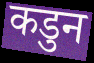
कडुन